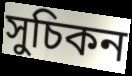
সুচিকন